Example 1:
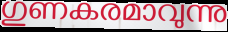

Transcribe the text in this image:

ഗുണകരമാവുന്നു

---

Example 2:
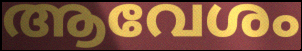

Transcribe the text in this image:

ആവേശം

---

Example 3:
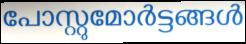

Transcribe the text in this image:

പോസ്റ്റുമോർട്ടങ്ങൾ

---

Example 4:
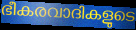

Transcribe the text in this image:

ഭീകരവാദികളുടെ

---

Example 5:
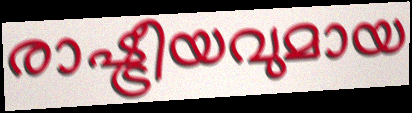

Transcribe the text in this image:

രാഷ്ട്രീയവുമായ